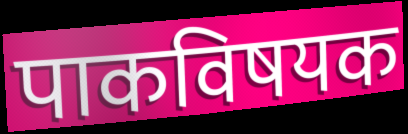
पाकविषयक